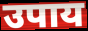
उपाय